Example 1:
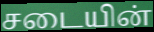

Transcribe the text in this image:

சடையின்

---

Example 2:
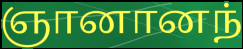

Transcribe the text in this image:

ஞானானந்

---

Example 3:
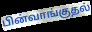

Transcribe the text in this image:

பின்வாங்குதல்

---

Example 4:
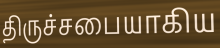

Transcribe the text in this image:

திருச்சபையாகிய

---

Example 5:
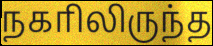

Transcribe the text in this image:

நகரிலிருந்த